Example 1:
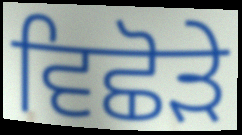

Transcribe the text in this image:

ਵਿਛੋੜੇ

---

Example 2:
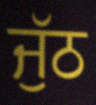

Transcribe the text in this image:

ਜੁੱਠ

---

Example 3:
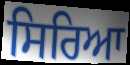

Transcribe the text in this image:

ਸਿਰਿਆ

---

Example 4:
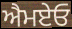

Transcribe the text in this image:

ਐਮਏਓ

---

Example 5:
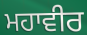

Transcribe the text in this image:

ਮਹਾਵੀਰ